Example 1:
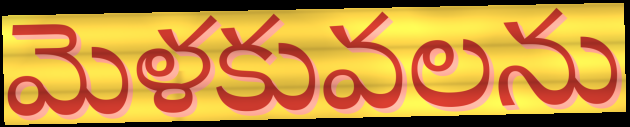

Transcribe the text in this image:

మెళకువలను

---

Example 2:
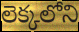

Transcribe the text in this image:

లెక్కలోని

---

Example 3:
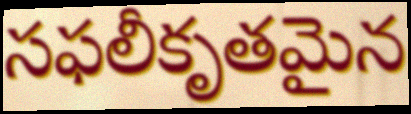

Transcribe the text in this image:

సఫలీకృతమైన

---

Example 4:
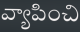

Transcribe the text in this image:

వ్యాపించి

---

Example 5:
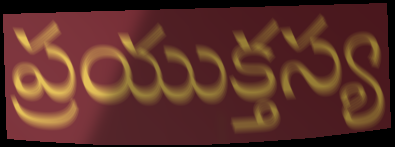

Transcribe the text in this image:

ప్రయుక్తస్య